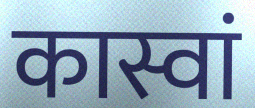
कास्वां